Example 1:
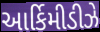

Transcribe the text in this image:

આર્કિમીડીઝે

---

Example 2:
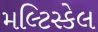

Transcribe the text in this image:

મલ્ટિસ્કેલ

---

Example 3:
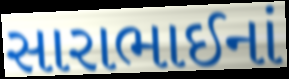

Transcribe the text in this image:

સારાભાઈનાં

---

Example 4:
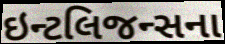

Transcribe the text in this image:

ઇન્ટલિજન્સના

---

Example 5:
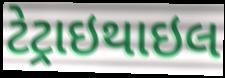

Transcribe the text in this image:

ટેટ્રાઇથાઇલ